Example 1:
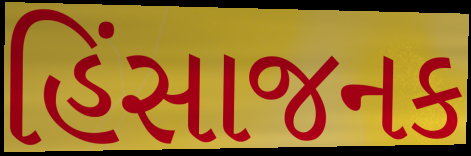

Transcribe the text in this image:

હિંસાજનક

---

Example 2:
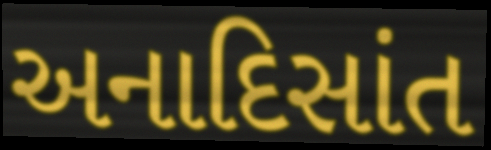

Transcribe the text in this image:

અનાદિસાંત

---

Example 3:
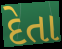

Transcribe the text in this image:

દેતા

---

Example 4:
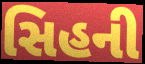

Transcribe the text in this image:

સિહની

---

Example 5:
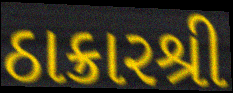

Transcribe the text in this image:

ઠાક્રારશ્રી